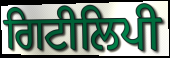
ਗਿਟੀਲਿਪੀ